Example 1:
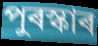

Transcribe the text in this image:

পুৰস্কাৰ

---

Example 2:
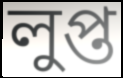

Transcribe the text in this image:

লুপ্ত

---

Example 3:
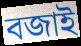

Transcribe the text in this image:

বজাই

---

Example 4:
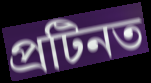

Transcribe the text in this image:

প্ৰটিনত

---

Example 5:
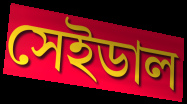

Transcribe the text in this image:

সেইডাল